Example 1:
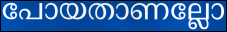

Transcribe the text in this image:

പോയതാണല്ലോ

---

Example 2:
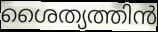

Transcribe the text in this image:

ശൈത്യത്തിൻ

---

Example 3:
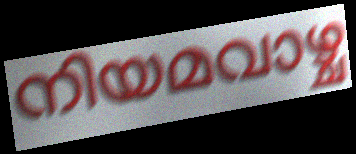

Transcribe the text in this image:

നിയമവാഴ്ച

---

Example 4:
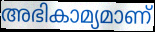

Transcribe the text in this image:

അഭികാമ്യമാണ്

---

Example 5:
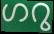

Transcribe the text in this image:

ഗറു